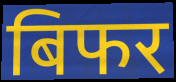
बिफर